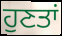
ਹੁਣਤਾਂ